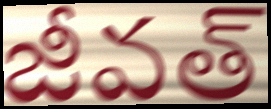
జీవత్